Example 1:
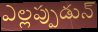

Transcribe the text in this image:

ఎల్లప్పుడున్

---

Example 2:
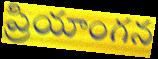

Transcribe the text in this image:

ప్రియాంగన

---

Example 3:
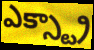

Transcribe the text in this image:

ఎక్స్ట్రా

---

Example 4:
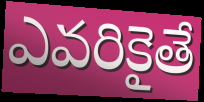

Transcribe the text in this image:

ఎవరికైతే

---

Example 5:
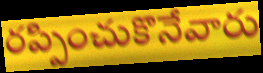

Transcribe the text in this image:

రప్పించుకొనేవారు